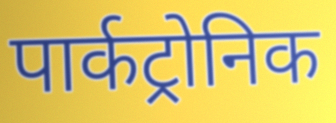
पार्कट्रोनिक